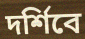
দর্শিবে